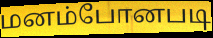
மனம்போனபடி